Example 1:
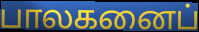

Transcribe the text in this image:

பாலகனைப்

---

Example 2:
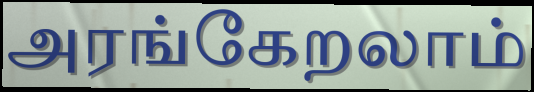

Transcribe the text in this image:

அரங்கேறலாம்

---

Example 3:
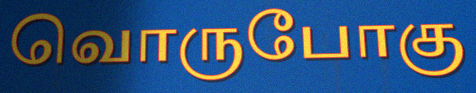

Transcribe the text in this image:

வொருபோகு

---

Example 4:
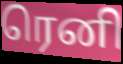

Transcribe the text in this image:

ரெனி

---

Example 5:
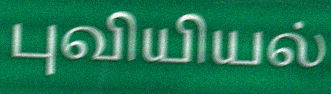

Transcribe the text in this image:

புவியியல்